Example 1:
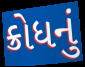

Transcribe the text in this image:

ક્રોધનું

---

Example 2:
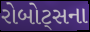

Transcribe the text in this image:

રોબોટ્સના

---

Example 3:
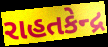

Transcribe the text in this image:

રાહતકેન્દ્ર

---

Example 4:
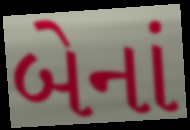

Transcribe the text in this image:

બેનાં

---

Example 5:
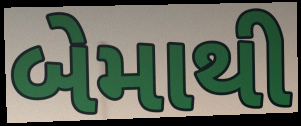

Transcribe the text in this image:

બેમાથી